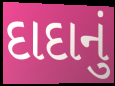
દાદાનું